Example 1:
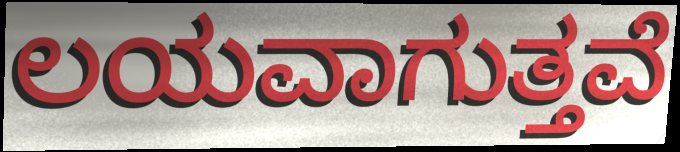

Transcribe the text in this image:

ಲಯವಾಗುತ್ತವೆ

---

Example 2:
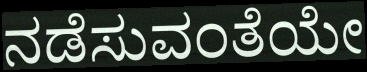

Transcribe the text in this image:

ನಡೆಸುವಂತೆಯೇ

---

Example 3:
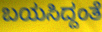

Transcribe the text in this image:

ಬಯಸಿದ್ದಂತೆ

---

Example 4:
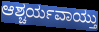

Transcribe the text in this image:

ಆಶ್ಚರ್ಯವಾಯ್ತು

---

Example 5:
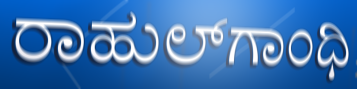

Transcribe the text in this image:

ರಾಹುಲ್‌ಗಾಂಧಿ